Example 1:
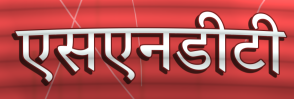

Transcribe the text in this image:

एसएनडीटी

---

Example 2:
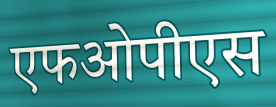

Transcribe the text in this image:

एफओपीएस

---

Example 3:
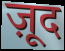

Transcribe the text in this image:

ज़ूद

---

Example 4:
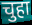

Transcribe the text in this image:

चुहा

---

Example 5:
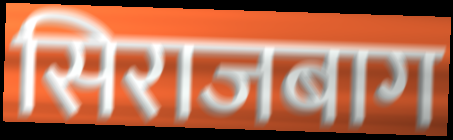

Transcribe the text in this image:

सिराजबाग